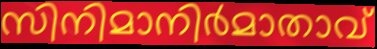
സിനിമാനിർമാതാവ്